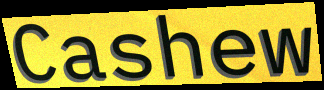
Cashew